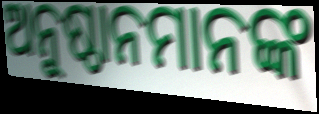
ଅନୁଷ୍ଠାନମାନଙ୍କ